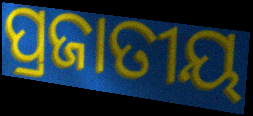
ପ୍ରଜାତୀୟ